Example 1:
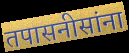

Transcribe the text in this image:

तपासनीसांना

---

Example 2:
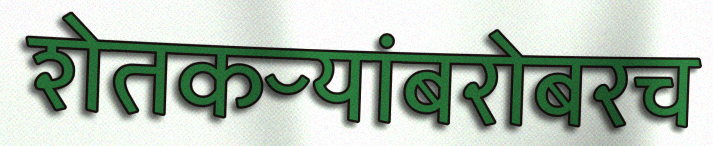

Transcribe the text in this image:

शेतकऱ्यांबरोबरच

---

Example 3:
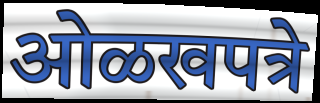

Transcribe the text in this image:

ओळखपत्रे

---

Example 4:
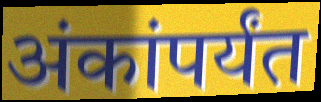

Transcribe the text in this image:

अंकांपर्यंत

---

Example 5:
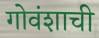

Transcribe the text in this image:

गोवंशाची